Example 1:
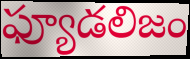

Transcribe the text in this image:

ఫ్యూడలిజం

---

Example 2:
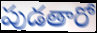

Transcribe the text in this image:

పుడతారో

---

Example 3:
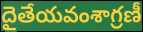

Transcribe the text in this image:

దైతేయవంశాగ్రణీ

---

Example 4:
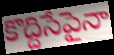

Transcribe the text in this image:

కొద్దిసేపైనా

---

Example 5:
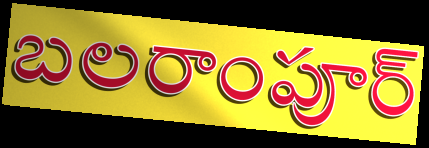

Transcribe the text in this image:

బలరాంపూర్